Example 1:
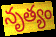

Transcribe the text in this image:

నృత్యం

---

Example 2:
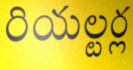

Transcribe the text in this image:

రియల్టర్ల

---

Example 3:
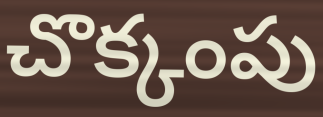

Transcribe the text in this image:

చొక్కంపు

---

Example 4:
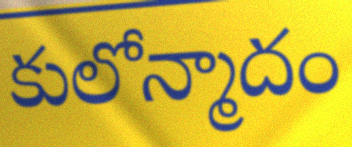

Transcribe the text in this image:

కులోన్మాదం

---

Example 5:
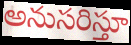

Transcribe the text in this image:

అనుసరిస్తూ